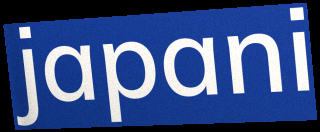
japani